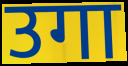
उगा